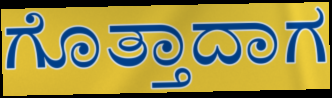
ಗೊತ್ತಾದಾಗ